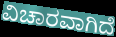
ವಿಚಾರವಾಗಿದೆ